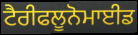
ਟੈਰੀਫਲੂਨੋਮਾਈਡ